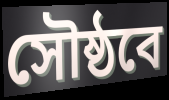
সৌষ্ঠবে